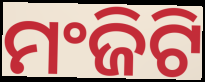
ମଂଜିଟି